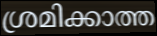
ശ്രമിക്കാത്ത